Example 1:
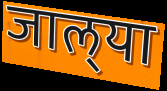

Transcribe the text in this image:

जाल्या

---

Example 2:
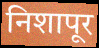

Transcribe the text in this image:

निशापूर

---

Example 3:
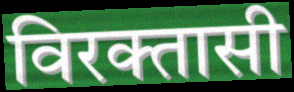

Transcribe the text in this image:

विरक्तासी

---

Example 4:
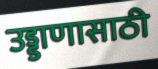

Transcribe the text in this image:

उड्डाणासाठी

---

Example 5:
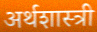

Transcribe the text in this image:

अर्थशास्त्री